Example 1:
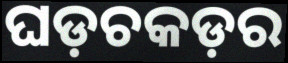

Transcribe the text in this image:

ଘଡ଼ଚକଡ଼ର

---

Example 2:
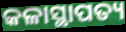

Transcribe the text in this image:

କଳାସ୍ଥାପତ୍ୟ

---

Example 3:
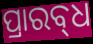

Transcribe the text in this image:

ପ୍ରାରବ୍‍ଧ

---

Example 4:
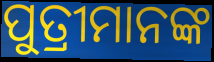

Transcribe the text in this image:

ପୁତ୍ରୀମାନଙ୍କ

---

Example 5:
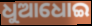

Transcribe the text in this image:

ଧୁଆଧୋଇ